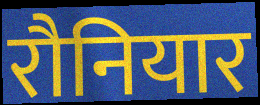
रौनियार